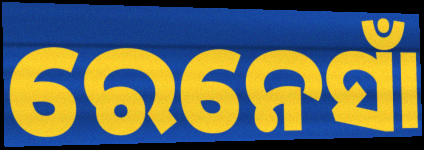
ରେନେସାଁ